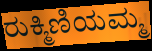
ರುಕ್ಮಿಣಿಯಮ್ಮ